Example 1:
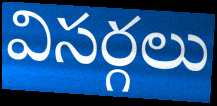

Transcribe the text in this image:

విసర్గలు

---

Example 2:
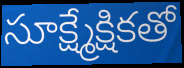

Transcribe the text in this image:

సూక్ష్మేక్షికతో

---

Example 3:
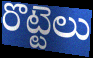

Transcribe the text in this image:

రొట్టెలు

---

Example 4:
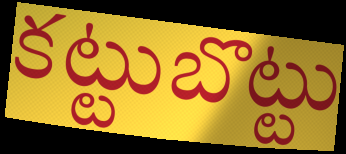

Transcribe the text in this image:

కట్టుబొట్టు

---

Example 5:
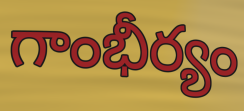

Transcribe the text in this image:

గాంభీర్యం